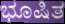
ಭೂಷಿತ